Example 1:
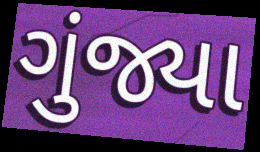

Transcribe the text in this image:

ગુંજ્યા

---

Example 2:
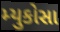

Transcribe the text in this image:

મ્યુકોસા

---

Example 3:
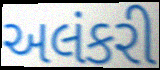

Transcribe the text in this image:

અલંકરી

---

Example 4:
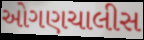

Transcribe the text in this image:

ઓગણચાલીસ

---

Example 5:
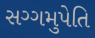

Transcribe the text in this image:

સગ્ગમુપેતિ